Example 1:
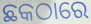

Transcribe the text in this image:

ଛକଠାରେ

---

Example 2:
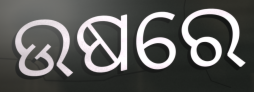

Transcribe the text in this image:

ଉଷରେ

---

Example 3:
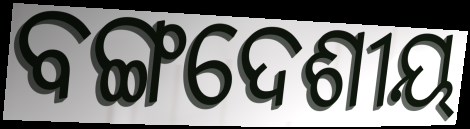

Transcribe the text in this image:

ବଙ୍ଗଦେଶୀୟ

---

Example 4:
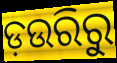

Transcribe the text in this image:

ଡ଼ଉରିରୁ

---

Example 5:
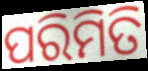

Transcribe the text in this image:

ପରିମିତି